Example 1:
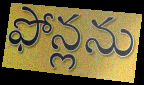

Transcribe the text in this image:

ఫోన్లను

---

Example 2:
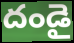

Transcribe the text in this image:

దండై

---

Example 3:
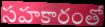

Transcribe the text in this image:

సహకారంతో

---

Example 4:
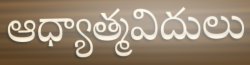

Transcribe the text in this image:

ఆధ్యాత్మవిదులు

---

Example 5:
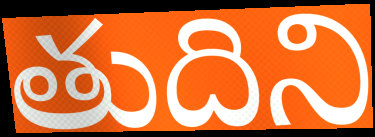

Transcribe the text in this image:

తుదిని